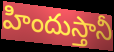
హిందుస్తానీ